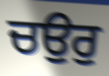
ਚਉਰੁ